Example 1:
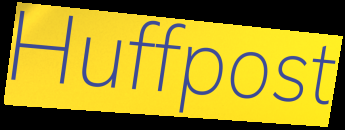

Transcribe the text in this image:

Huffpost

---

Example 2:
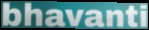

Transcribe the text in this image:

bhavanti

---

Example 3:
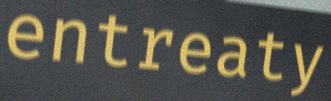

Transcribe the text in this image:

entreaty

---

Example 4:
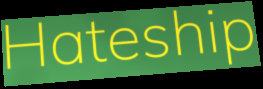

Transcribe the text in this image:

Hateship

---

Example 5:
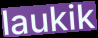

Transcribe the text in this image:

laukik